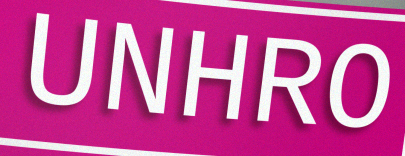
UNHRO